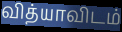
வித்யாவிடம்